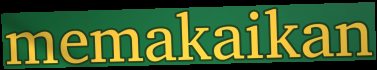
memakaikan